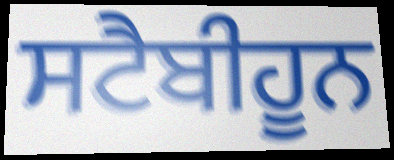
ਸਟੈਬੀਹੂਨ